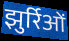
झुर्रिओं